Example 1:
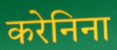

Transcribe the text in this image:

करेनिना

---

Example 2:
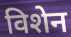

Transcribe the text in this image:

विशेन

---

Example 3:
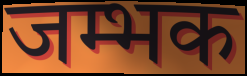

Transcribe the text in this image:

जम्भक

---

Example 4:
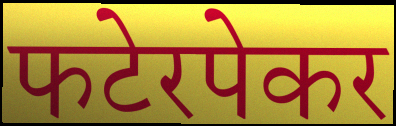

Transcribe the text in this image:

फटेरपेकर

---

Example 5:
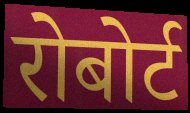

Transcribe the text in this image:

रोबोर्ट